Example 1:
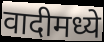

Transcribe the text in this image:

वादीमध्ये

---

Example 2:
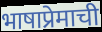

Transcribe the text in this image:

भाषाप्रेमाची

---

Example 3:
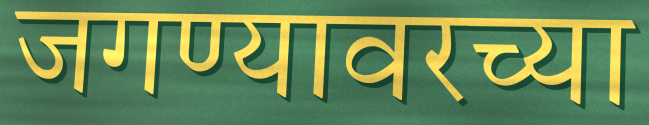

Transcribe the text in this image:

जगण्यावरच्या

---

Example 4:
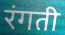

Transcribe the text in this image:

रंगती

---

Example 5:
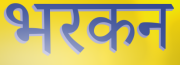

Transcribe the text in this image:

भरकन